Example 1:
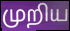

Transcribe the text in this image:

முறிய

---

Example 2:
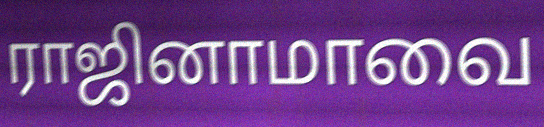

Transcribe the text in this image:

ராஜினாமாவை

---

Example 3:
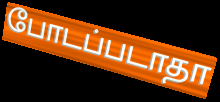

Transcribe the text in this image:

போடப்படாதா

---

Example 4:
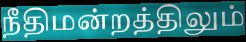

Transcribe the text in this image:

நீதிமன்றத்திலும்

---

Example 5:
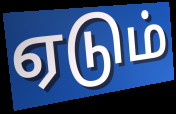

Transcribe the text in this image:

ஏடும்